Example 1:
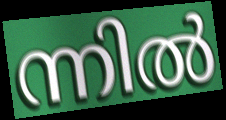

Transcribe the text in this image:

ന്നിൽ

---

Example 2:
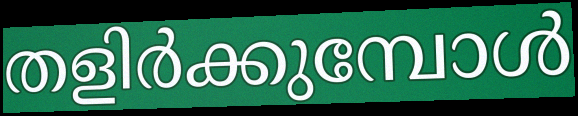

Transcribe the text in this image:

തളിർക്കുമ്പോൾ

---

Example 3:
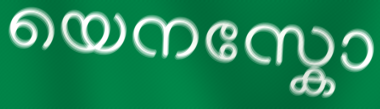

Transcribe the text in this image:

യെനസ്കോ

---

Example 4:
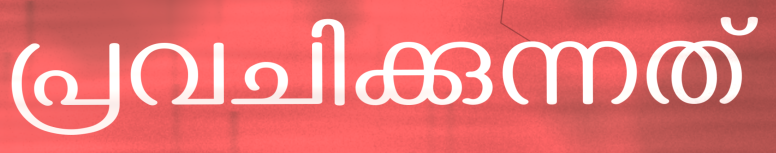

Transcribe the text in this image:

പ്രവചിക്കുന്നത്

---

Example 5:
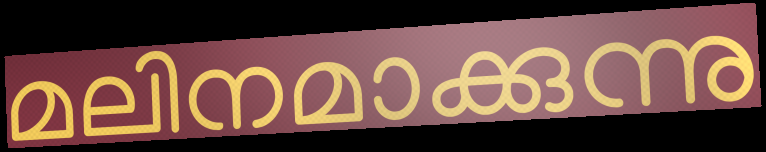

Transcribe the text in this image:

മലിനമാക്കുന്നു